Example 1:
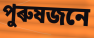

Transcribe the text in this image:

পুৰুষজনে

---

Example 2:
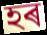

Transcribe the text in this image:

হৰ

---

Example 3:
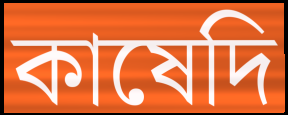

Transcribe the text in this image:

কাষেদি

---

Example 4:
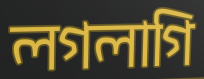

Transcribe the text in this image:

লগলাগি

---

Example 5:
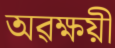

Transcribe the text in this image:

অৱক্ষয়ী